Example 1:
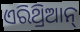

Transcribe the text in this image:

ଏରିଥ୍ରିଆନ୍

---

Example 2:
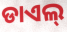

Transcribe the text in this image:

ଡାଏଲ୍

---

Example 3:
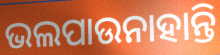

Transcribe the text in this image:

ଭଲପାଉନାହାନ୍ତି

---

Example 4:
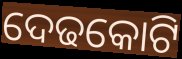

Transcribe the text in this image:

ଦେଢକୋଟି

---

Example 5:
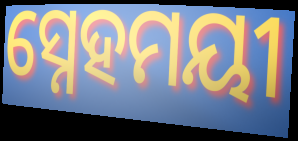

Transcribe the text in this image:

ସ୍ନେହମୟୀ